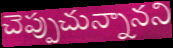
చెప్పుచున్నానని